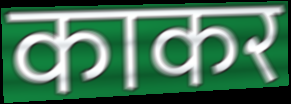
काकर